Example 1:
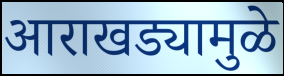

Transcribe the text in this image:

आराखड्यामुळे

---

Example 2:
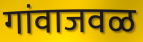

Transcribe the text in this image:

गांवाजवळ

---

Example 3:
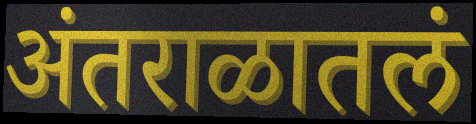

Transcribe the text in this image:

अंतराळातलं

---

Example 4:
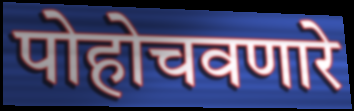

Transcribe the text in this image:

पोहोचवणारे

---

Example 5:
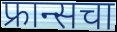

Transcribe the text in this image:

फ्रान्सचा